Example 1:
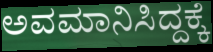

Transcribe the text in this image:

ಅವಮಾನಿಸಿದ್ದಕ್ಕೆ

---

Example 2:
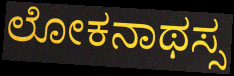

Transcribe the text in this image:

ಲೋಕನಾಥಸ್ಸ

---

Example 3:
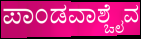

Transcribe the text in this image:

ಪಾಂಡವಾಶ್ಚೈವ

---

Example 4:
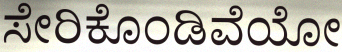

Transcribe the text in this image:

ಸೇರಿಕೊಂಡಿವೆಯೋ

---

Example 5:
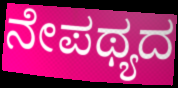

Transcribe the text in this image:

ನೇಪಥ್ಯದ